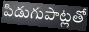
పిడుగుపాట్లతో